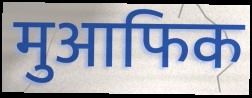
मुआफिक